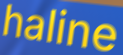
haline